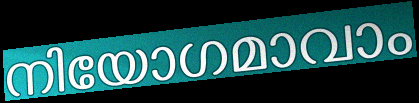
നിയോഗമാവാം